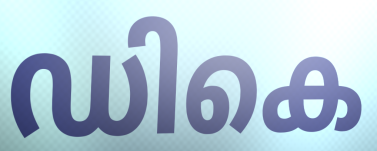
ഡികെ